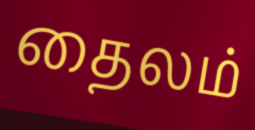
தைலம்